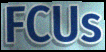
FCUs